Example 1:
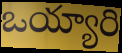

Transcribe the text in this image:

ఒయ్యారి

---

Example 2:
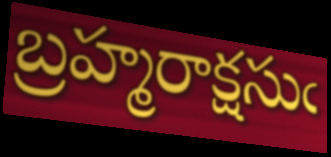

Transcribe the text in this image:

బ్రహ్మరాక్షసుఁ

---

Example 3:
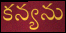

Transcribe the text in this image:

కన్యను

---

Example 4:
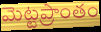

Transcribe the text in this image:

మెట్టప్రాంతం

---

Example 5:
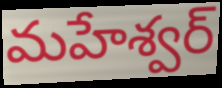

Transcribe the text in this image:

మహేశ్వర్